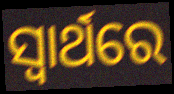
ସ୍ଵାର୍ଥରେ